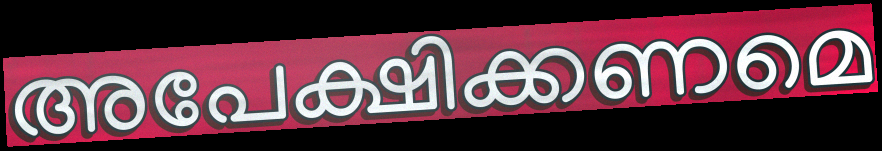
അപേക്ഷിക്കണമെ